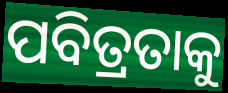
ପବିତ୍ରତାକୁ